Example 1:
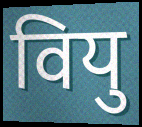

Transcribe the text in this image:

वियु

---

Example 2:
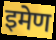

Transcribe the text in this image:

इमेण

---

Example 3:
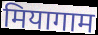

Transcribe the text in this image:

मियागाम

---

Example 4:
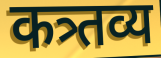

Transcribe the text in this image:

कत्र्तव्य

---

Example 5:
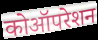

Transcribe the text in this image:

कोऑपरेशन